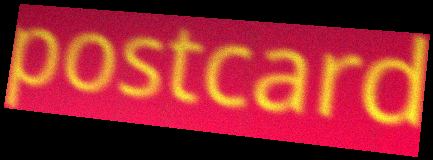
postcard